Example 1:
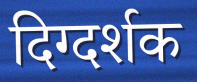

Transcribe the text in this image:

दिग्दर्शक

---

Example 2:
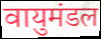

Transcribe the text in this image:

वायुमंडल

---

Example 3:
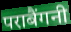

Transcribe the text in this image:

पराबैंगनी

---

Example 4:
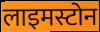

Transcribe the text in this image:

लाइमस्टोन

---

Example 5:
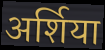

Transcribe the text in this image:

अर्शिया